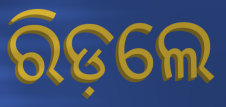
ରିଡ଼ଲେ